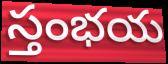
స్తంభయ